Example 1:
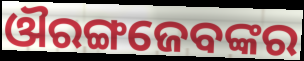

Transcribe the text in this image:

ଔରଙ୍ଗଜେବଙ୍କର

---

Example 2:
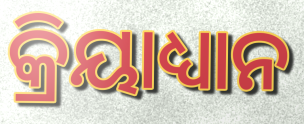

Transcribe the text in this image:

କ୍ରିୟାଧ୍ୟାନ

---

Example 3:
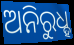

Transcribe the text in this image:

ଅନିରୁଧ୍ହ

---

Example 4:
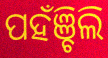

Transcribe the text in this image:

ପହଁଞ୍ଚିଲି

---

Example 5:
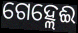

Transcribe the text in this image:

ଗେହ୍ଲେଈ